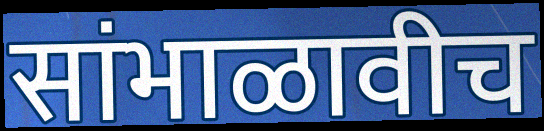
सांभाळावीच